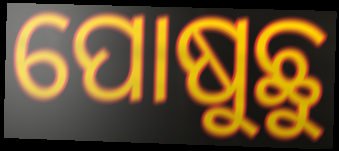
ପୋଷୁଛୁ